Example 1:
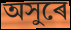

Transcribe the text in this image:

অসুৰে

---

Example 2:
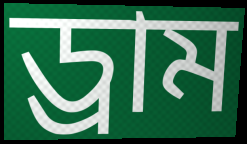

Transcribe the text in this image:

ড্ৰাম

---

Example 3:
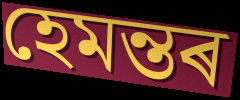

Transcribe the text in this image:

হেমন্তৰ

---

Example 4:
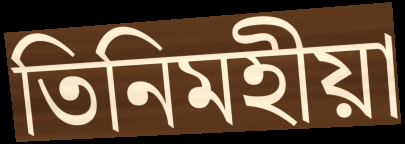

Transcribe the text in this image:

তিনিমহীয়া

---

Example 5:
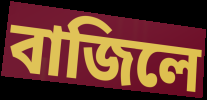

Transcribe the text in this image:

বাজিলে